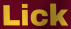
Lick